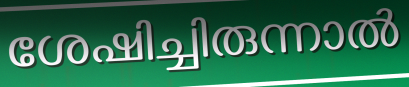
ശേഷിച്ചിരുന്നാൽ